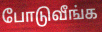
போடுவீங்க